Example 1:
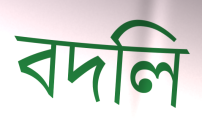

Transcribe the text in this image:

বদলি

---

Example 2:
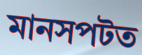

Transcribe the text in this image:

মানসপটত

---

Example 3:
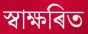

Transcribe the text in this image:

স্বাক্ষৰিত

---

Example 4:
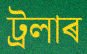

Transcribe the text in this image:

ট্ৰলাৰ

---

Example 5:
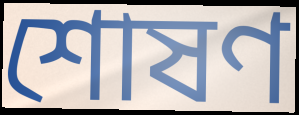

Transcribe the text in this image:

শোষণ